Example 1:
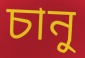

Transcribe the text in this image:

চানু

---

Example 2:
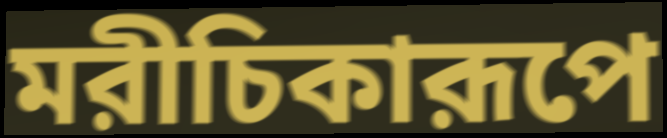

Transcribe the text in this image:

মরীচিকারূপে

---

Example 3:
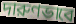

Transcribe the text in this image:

দারুণভাবে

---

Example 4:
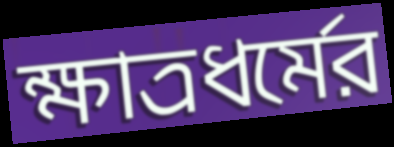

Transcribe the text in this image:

ক্ষাত্রধর্মের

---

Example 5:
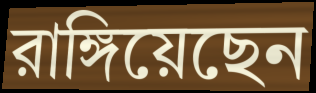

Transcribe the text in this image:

রাঙ্গিয়েছেন